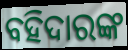
ବହିଦାରଙ୍କ